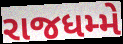
રાજધમ્મે